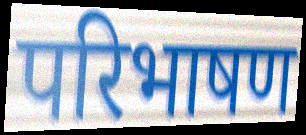
परिभाषण